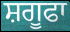
ਸ਼ਗੂਫਾ